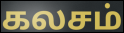
கலசம்